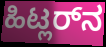
ಹಿಟ್ಲರ್‌ನ